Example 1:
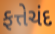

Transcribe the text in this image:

ફત્તેચંદ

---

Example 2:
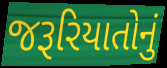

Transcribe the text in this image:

જરૂરિયાતોનું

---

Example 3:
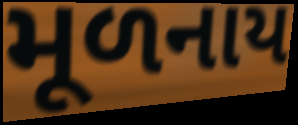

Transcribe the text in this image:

મૂળનાય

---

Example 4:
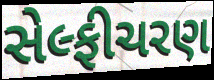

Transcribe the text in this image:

સેલ્ફીચરણ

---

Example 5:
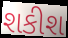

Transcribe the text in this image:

શકીશ